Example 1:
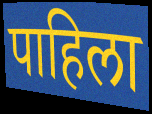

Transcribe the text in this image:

पाहिला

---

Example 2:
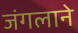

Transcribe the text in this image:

जंगलाने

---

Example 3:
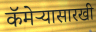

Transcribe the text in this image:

कॅमेऱ्यासारखी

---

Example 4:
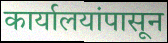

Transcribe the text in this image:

कार्यालयांपासून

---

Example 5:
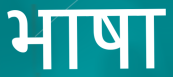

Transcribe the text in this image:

भाषा